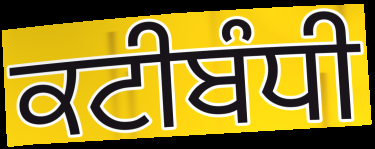
ਕਟੀਬੰਧੀ